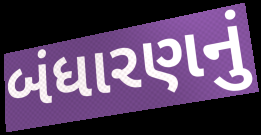
બંધારણનું